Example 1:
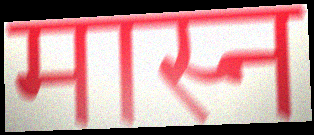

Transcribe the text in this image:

मास्न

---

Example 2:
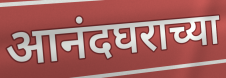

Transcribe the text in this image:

आनंदघराच्या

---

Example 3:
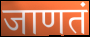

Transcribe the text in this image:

जाणतं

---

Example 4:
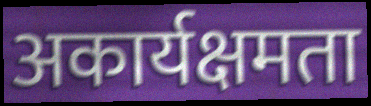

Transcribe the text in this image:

अकार्यक्षमता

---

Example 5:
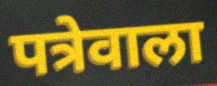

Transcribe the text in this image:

पत्रेवाला